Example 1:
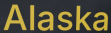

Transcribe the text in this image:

Alaska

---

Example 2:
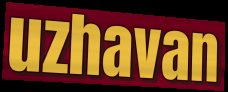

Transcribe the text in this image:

uzhavan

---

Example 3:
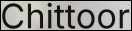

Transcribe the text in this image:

Chittoor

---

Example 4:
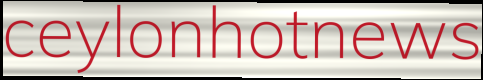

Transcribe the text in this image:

ceylonhotnews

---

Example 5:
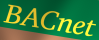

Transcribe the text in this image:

BACnet